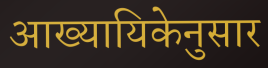
आख्यायिकेनुसार